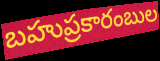
బహుప్రకారంబుల